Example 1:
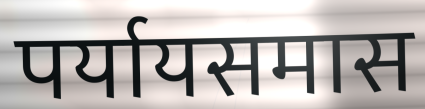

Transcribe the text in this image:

पर्यायसमास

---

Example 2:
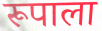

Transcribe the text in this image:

रूपाला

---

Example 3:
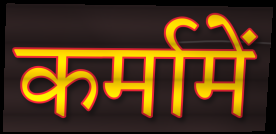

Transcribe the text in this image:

कर्मामें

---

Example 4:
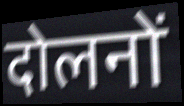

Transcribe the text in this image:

दोलनों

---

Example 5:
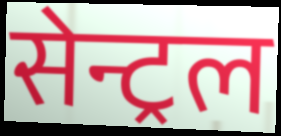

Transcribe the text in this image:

सेन्ट्रल